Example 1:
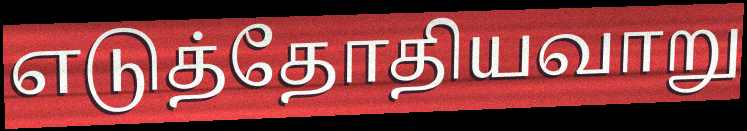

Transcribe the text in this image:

எடுத்தோதியவாறு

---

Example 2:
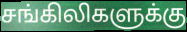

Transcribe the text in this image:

சங்கிலிகளுக்கு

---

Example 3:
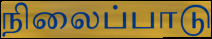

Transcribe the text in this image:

நிலைப்பாடு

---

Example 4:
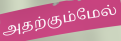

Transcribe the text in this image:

அதற்கும்மேல்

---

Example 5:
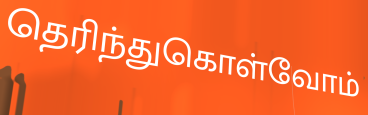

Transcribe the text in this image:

தெரிந்துகொள்வோம்